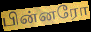
பின்னரோ